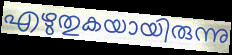
എഴുതുകയായിരുന്നു